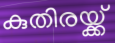
കുതിരയ്ക്ക്